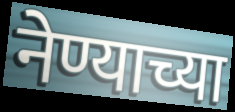
नेण्याच्या